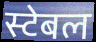
स्टेबल